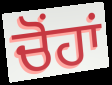
ਚੋਂਹਾਂ